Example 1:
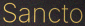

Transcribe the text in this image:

Sancto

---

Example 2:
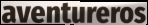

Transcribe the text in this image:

aventureros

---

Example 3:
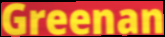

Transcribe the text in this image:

Greenan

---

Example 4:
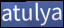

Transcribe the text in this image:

atulya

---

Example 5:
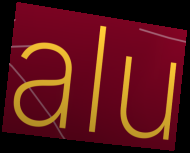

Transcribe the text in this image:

alu